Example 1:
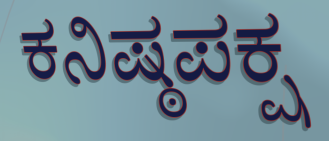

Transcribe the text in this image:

ಕನಿಷ್ಠಪಕ್ಷ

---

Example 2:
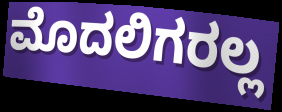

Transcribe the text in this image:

ಮೊದಲಿಗರಲ್ಲ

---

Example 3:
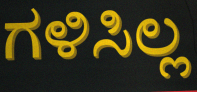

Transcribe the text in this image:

ಗಳಿಸಿಲ್ಲ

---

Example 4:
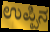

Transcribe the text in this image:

ಉಪ್ಪಿನ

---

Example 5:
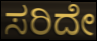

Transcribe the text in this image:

ಸರಿದೇ